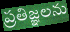
ప్రతిజ్ఞలను